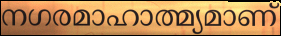
നഗരമാഹാത്മ്യമാണ്